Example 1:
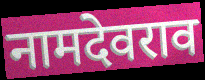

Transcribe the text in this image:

नामदेवराव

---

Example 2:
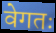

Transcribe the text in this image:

वेगतः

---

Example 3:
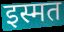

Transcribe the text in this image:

इस्मत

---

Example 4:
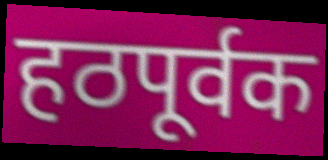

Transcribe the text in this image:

हठपूर्वक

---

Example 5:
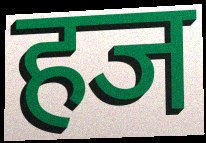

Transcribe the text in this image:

हज